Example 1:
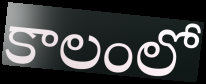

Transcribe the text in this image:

కాలంలో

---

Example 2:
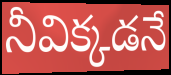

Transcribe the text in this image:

నీవిక్కడనే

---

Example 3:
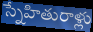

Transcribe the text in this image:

స్నేహితురాళ్లు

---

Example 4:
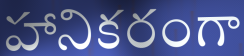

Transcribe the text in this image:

హానికరంగా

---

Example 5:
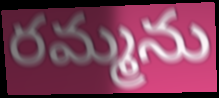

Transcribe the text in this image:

రమ్మను